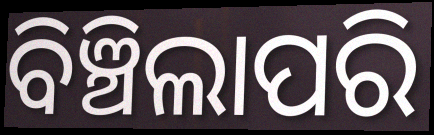
ବିଞ୍ଚିଲାପରି